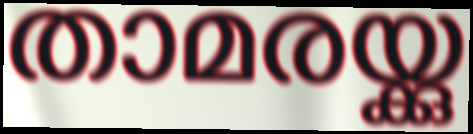
താമരയ്ക്കു